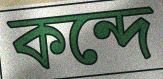
কন্দে